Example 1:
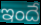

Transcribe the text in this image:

ఇందే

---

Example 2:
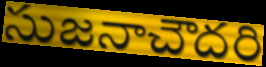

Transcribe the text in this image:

సుజనాచౌదరి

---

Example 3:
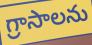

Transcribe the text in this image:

గ్రాసాలను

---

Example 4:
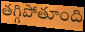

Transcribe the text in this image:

తగ్గిపోతూంది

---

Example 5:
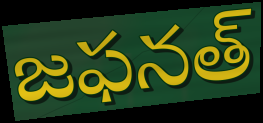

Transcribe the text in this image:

జఫనత్